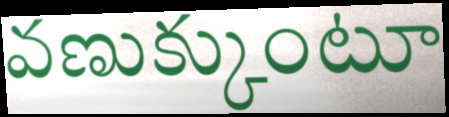
వణుక్కుంటూ